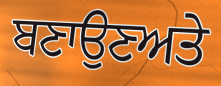
ਬਣਾਉਣਅਤੇ